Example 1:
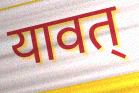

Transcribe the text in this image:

यावत्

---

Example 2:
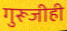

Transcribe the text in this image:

गुरूजीही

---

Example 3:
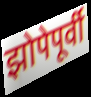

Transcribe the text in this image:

झोपेपूर्वी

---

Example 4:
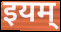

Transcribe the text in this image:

इयम्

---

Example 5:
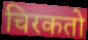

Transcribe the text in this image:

चिरकतो